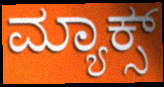
ಮ್ಯಾಕ್ಸ್